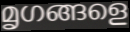
മൃഗങ്ങളെ